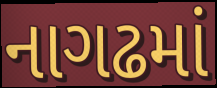
નાગઢમાં